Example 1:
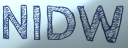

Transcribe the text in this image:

NIDW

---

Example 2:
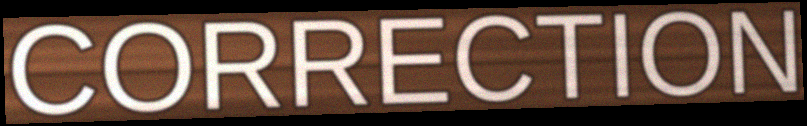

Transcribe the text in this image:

CORRECTION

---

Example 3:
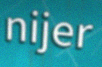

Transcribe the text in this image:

nijer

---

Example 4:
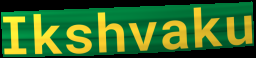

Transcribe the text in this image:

Ikshvaku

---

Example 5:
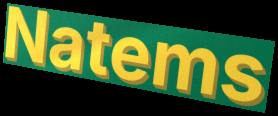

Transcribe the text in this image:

Natems